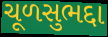
ચૂળસુભદ્દા